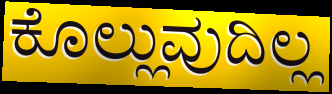
ಕೊಲ್ಲುವುದಿಲ್ಲ